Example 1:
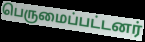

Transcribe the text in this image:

பெருமைப்பட்டனர்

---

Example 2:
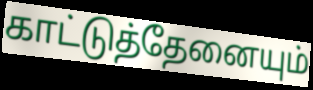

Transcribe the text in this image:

காட்டுத்தேனையும்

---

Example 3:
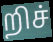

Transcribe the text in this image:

றிச்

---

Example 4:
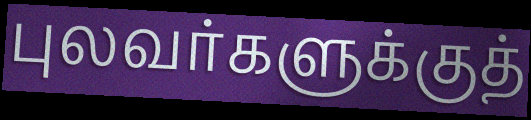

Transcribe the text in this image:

புலவர்களுக்குத்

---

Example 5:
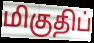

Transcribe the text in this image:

மிகுதிப்